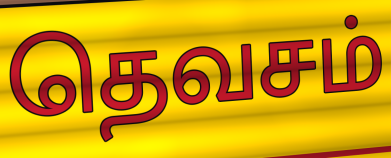
தெவசம்